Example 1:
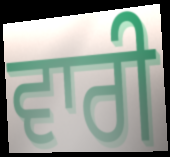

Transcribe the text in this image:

ਵਾਰੀ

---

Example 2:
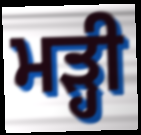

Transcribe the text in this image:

ਮੜ੍ਹੀ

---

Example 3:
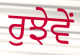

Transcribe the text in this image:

ਰੁਝੇਵੇਂ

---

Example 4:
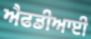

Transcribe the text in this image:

ਐਫਡੀਆਈ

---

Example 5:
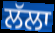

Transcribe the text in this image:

ਲੱਲਾ